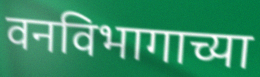
वनविभागाच्या